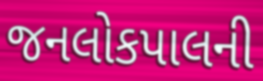
જનલોકપાલની